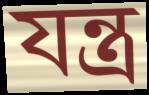
যন্ত্ৰ